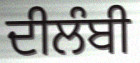
ਦੀਲੰਬੀ